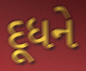
દૂધને